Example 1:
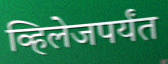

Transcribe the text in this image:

व्हिलेजपर्यंत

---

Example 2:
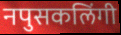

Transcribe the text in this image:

नपुसकलिंगी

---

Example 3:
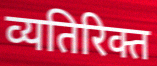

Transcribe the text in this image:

व्यतिरिक्त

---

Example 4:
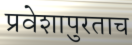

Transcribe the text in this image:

प्रवेशापुरताच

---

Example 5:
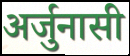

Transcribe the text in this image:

अर्जुनासी